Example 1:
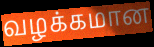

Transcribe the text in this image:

வழக்கமான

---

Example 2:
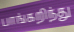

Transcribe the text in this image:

பாங்கறிந்து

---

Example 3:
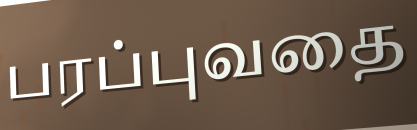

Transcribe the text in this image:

பரப்புவதை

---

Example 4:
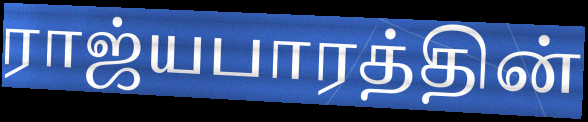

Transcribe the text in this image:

ராஜ்யபாரத்தின்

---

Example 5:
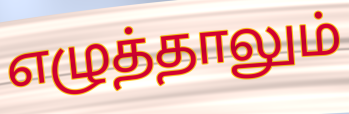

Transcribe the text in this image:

எழுத்தாலும்